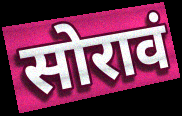
सोरावं